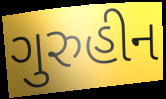
ગુરુહીન